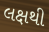
લક્ષથી